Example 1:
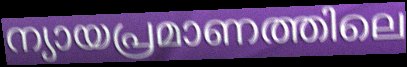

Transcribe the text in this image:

ന്യായപ്രമാണത്തിലെ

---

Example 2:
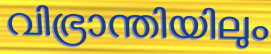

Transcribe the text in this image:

വിഭ്രാന്തിയിലും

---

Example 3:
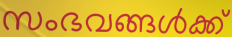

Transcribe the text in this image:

സംഭവങ്ങൾക്ക്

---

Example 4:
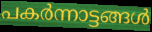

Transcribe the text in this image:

പകർന്നാട്ടങ്ങൾ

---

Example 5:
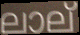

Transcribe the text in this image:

ലാല്